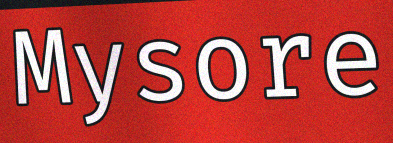
Mysore